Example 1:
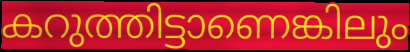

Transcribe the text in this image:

കറുത്തിട്ടാണെങ്കിലും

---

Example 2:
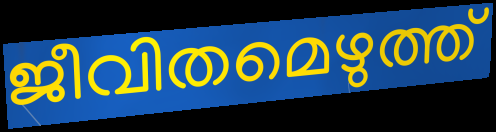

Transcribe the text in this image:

ജീവിതമെഴുത്ത്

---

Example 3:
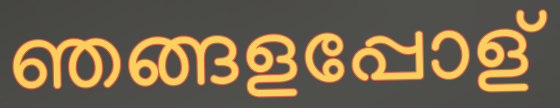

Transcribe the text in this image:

ഞങ്ങളപ്പോള്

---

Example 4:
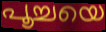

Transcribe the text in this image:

പൂച്ചയെ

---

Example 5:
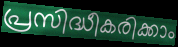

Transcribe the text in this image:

പ്രസിദ്ധീകരിക്കാം